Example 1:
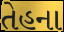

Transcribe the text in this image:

તેહના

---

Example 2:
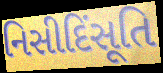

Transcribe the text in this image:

નિસીદિંસૂતિ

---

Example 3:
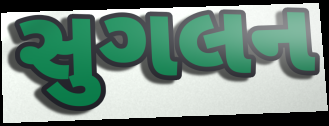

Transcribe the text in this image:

સુગલન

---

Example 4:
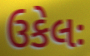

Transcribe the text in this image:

ઉકેલઃ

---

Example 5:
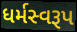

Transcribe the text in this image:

ધર્મસ્વરૂપ